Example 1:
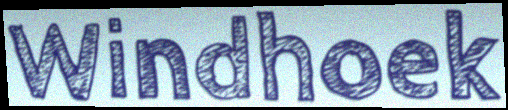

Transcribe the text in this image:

Windhoek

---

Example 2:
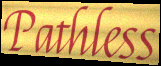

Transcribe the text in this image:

Pathless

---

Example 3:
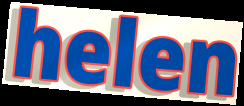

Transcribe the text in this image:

helen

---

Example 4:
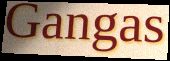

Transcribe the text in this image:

Gangas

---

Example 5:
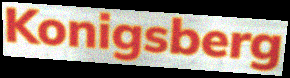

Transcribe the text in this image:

Konigsberg